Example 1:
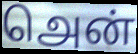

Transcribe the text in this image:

அென்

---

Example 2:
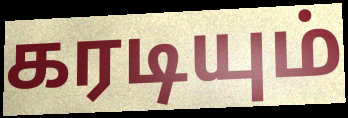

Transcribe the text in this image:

கரடியும்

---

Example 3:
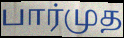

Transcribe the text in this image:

பார்முத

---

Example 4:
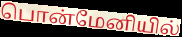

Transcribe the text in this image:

பொன்மேனியில்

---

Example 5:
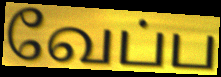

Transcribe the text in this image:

வேப்ப